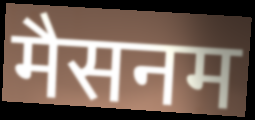
मैसनम